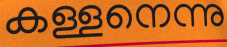
കള്ളനെന്നു